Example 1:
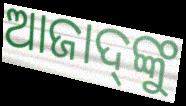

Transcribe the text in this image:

ଆଜାଦ୍‌ଙ୍କୁ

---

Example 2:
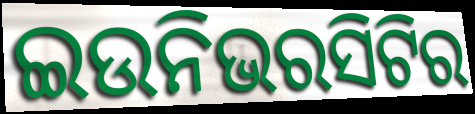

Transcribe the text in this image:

ଇଉନିଭରସିଟିର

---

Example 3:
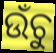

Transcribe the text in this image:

ଉଁଚୁ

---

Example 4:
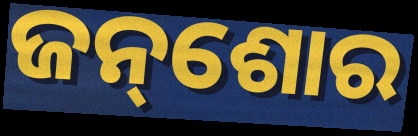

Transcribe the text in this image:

ଜନ୍‌ଶୋର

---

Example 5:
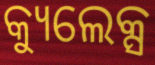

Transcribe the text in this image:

କ୍ୟୁଲେକ୍ସ